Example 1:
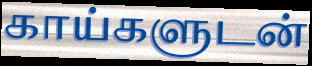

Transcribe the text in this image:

காய்களுடன்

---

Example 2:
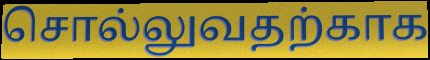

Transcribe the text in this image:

சொல்லுவதற்காக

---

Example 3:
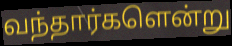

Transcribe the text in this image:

வந்தார்களென்று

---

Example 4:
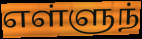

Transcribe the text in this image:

எள்ளுந்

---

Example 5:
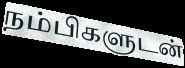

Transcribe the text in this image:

நம்பிகளுடன்